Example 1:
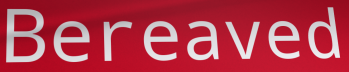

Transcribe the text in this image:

Bereaved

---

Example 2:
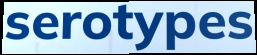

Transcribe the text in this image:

serotypes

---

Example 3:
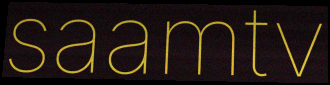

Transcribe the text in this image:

saamtv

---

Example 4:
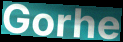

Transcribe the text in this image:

Gorhe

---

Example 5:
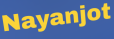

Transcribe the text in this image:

Nayanjot